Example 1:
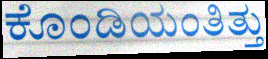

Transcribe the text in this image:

ಕೊಂಡಿಯಂತಿತ್ತು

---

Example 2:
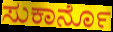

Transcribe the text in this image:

ಸುಕಾರ್ನೊ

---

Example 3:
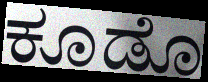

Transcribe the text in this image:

ಕೂಡೊ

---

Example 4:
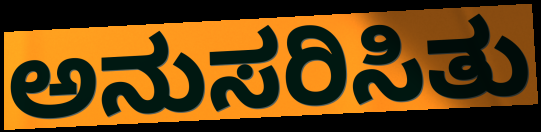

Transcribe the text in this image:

ಅನುಸರಿಸಿತು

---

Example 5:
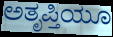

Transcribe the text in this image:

ಅತೃಪ್ತಿಯೂ